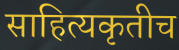
साहित्यकृतीच